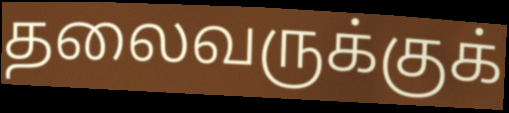
தலைவருக்குக்